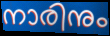
നാരിനും